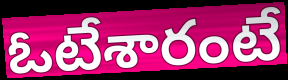
ఓటేశారంటే